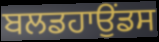
ਬਲਡਹਾਉਂਡਸ